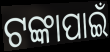
ଟଙ୍କାପାଇଁ